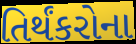
તિર્થંકરોના